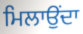
ਮਿਲਾਉਂਦਾ